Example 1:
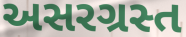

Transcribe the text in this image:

અસરગ્રસ્ત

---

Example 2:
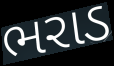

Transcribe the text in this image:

ભરાડ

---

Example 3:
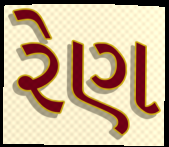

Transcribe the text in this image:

રેણ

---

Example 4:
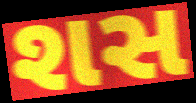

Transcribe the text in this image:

શસ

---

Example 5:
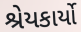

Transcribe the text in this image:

શ્રેયકાર્યો